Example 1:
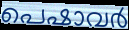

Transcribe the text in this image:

പെഷാവർ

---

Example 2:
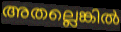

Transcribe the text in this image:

അതല്ലെങ്കിൽ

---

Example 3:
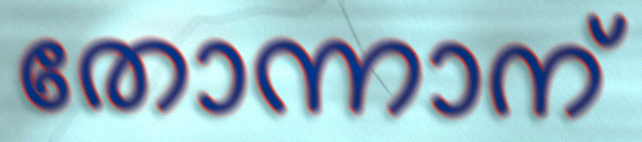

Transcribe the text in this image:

തോന്നാന്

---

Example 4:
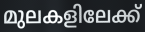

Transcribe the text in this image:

മുലകളിലേക്ക്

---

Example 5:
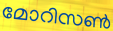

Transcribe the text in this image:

മോറിസൺ